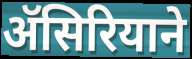
ॲसिरियाने